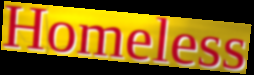
Homeless